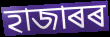
হাজাৰৰ